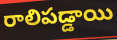
రాలిపడ్డాయి